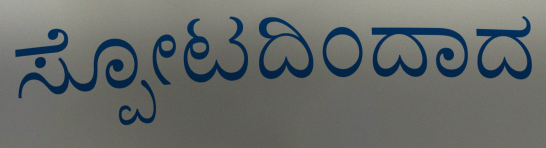
ಸ್ಪೋಟದಿಂದಾದ